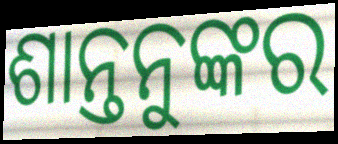
ଶାନ୍ତନୁଙ୍କର